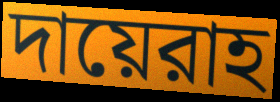
দায়েরাহ